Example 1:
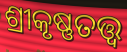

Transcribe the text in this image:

ଶ୍ରୀକୃଷ୍ଣତତ୍ତ୍ଵ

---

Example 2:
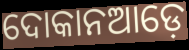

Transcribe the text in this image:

ଦୋକାନଆଡ଼େ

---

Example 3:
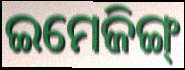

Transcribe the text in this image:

ଇମେଜିଙ୍ଗ୍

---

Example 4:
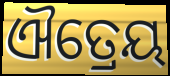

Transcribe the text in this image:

ଐତ୍ରେୟ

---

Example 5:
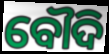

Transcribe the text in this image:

ବୌଦି